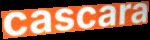
cascara